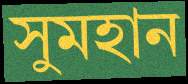
সুমহান